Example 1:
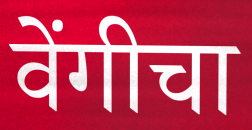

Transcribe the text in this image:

वेंगीचा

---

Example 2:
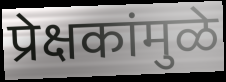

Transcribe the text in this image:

प्रेक्षकांमुळे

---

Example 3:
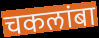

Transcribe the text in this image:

चकलांबा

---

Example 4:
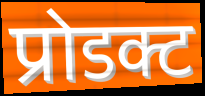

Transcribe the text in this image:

प्रोडक्ट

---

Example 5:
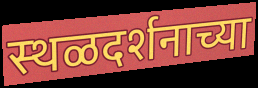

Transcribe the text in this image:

स्थळदर्शनाच्या